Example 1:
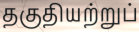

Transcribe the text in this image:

தகுதியற்றுப்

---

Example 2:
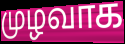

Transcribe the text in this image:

முழவாக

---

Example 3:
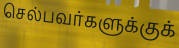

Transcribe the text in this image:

செல்பவர்களுக்குக்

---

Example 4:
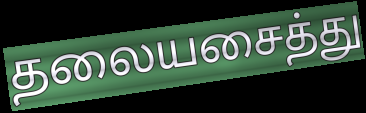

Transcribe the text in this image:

தலையசைத்து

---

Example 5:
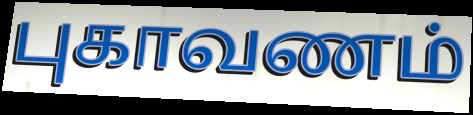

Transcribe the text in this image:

புகாவணம்